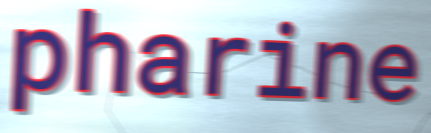
pharine